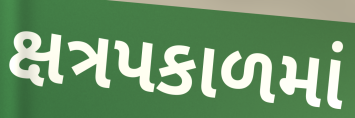
ક્ષત્રપકાળમાં